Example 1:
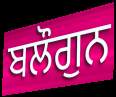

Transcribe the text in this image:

ਬਲੌਗੁਨ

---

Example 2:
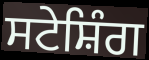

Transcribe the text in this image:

ਸਟੇਸ਼ਿੰਗ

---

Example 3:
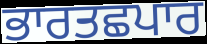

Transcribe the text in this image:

ਭਾਰਤਛਪਾਰ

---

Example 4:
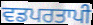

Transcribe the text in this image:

ਵਡਪਰਤਾਪੀ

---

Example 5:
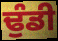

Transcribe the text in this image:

ਢੁੰਡੀ